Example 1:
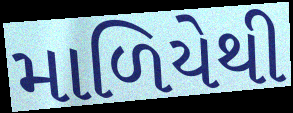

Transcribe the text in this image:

માળિયેથી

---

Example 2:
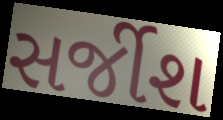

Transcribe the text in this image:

સર્જીશ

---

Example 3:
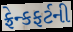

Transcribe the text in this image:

ફ્રેન્કફર્ટની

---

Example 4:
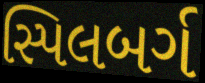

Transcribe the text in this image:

સ્પિલબર્ગ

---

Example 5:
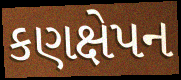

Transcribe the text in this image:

કણક્ષેપન